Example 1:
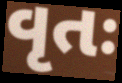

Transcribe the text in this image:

વૃતઃ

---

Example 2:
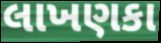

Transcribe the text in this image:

લાખણકા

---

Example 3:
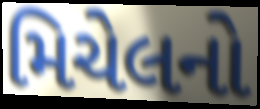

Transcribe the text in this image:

મિચેલનો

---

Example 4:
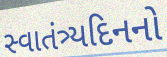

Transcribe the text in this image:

સ્વાતંત્ર્યદિનનો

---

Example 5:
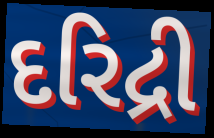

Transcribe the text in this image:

દરિદ્રી